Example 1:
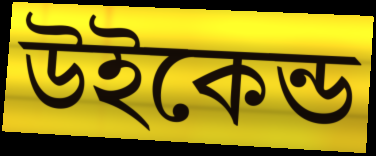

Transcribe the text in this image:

উইকেন্ড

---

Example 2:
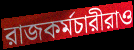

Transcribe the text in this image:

রাজকর্মচারীরাও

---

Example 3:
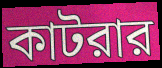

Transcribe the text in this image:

কাটরার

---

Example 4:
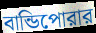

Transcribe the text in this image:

বান্ডিপোরার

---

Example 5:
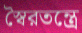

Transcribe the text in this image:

স্বৈরতন্ত্রে